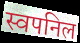
स्वपनिल